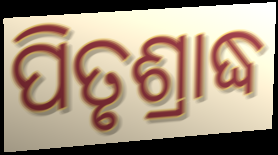
ପିତୃଶ୍ରାଦ୍ଧ